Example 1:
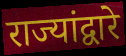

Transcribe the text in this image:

राज्यांद्वारे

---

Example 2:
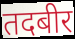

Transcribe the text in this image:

तदबीर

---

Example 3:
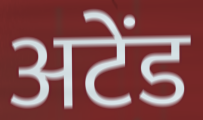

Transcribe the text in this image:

अटेंड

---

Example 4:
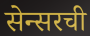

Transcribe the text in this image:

सेन्सरची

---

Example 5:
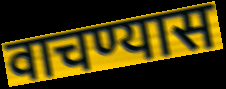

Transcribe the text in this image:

वाचण्यास